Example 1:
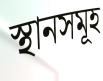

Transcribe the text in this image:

স্থানসমূহ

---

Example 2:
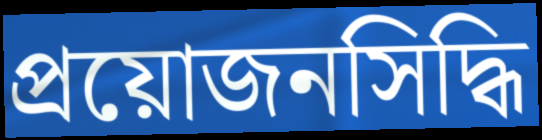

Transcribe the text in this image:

প্রয়োজনসিদ্ধি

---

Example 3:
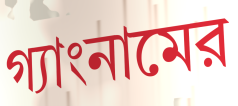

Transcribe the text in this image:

গ্যাংনামের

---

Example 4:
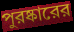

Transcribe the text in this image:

পুরষ্কারের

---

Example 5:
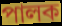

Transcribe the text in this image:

পালক